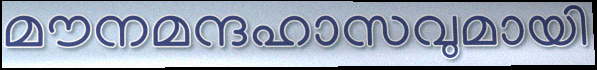
മൗനമന്ദഹാസവുമായി